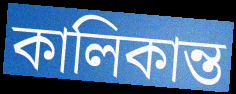
কালিকান্ত